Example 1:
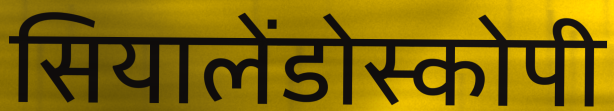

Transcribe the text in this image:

सियालेंडोस्कोपी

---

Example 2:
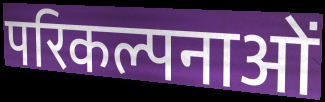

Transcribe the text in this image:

परिकल्पनाओं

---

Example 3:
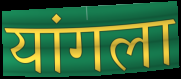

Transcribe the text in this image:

यांगला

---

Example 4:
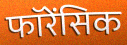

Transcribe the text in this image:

फॉरेंसिक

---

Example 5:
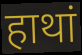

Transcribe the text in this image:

हाथां